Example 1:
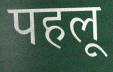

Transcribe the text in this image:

पहलू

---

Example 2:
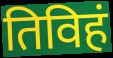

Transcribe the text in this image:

तिविहं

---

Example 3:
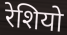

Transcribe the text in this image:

रेशियो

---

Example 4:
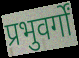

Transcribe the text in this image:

प्रभुवर्गों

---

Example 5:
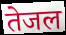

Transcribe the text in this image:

तेजल